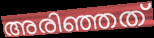
അരിഞ്ഞത്